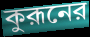
কুরূনের